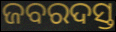
ଜବରଦସ୍ତ